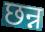
छन्न